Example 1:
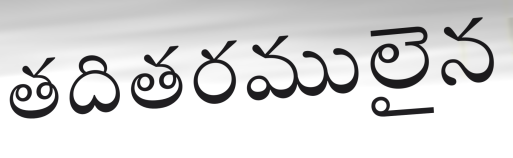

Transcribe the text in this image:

తదితరములైన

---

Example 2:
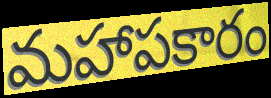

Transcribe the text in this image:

మహాపకారం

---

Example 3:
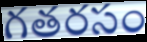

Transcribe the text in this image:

గతరసం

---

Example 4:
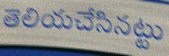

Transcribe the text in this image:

తెలియచేసినట్టు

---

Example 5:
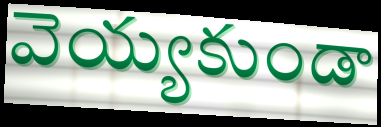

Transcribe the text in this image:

వెయ్యకుండా